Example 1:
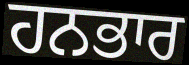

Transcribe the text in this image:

ਹਨਭਾਰ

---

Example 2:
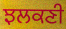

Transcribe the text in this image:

ਝਲਕਣੀ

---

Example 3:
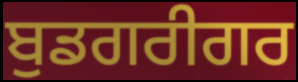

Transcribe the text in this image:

ਬੁਡਗਰੀਗਰ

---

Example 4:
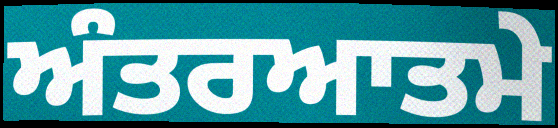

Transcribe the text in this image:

ਅੰਤਰਆਤਮੇ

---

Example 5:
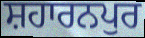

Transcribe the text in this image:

ਸ਼ਹਾਰਨਪੁਰ